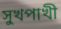
সুখপাখী